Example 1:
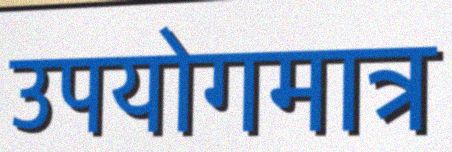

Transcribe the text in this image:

उपयोगमात्र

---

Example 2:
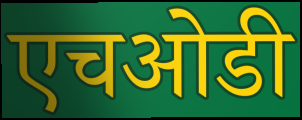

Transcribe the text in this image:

एचओडी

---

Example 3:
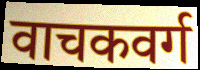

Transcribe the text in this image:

वाचकवर्ग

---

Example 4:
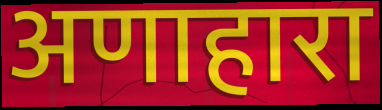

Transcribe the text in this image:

अणाहारा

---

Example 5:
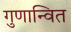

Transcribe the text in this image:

गुणान्वित